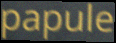
papule